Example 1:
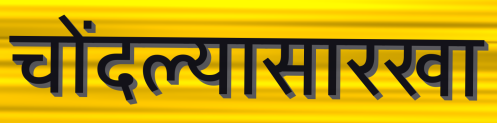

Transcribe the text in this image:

चोंदल्यासारखा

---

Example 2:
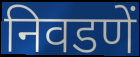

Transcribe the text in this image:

निवडणें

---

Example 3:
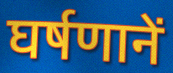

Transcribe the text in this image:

घर्षणानें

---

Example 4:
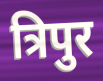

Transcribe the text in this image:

त्रिपुर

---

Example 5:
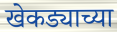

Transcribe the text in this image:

खेकड्याच्या